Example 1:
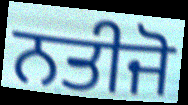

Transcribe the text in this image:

ਨਤੀਜੋ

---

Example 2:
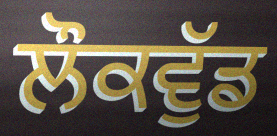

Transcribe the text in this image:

ਲੌਕਵੁੱਡ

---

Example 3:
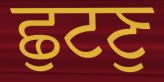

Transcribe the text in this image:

ਛੁਟਣੁ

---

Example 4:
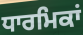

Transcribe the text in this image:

ਧਾਰਮਿਕਾਂ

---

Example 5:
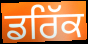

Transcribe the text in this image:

ਡਰਿੱਕ